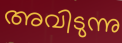
അവിടുന്നു